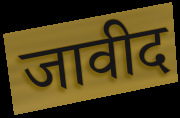
जावीद